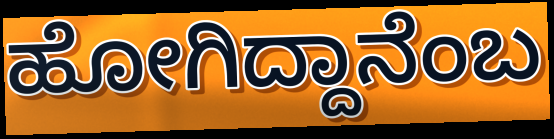
ಹೋಗಿದ್ದಾನೆಂಬ